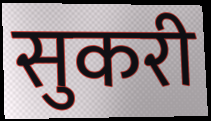
सुकरी